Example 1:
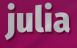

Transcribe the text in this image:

julia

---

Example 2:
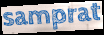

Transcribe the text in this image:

samprat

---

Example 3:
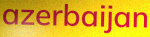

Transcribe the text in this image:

azerbaijan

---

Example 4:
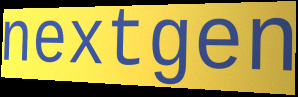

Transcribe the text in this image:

nextgen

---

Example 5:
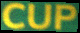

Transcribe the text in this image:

CUP